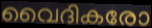
വൈദികരോ